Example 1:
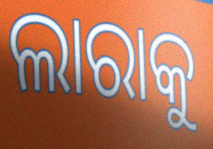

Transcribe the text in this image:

ଲାରାକୁ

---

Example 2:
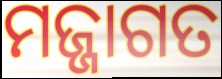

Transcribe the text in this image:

ମଜ୍ଜାଗତ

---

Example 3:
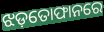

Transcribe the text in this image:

ଝଡ଼ତୋଫାନରେ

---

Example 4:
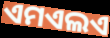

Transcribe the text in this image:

ଏମଏଲଏ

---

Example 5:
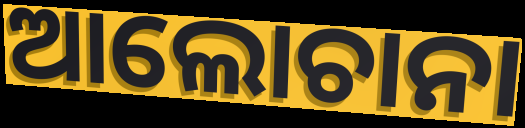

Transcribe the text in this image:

ଆଲୋଚାନା